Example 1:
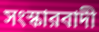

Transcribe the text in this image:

সংস্কারবাদী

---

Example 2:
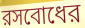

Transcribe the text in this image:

রসবোধের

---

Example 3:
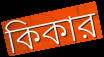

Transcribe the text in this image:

কিকার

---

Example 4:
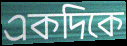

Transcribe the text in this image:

একদিকে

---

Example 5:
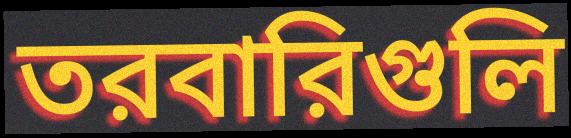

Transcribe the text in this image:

তরবারিগুলি